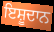
ਇਸ਼ੂਦਾਨ